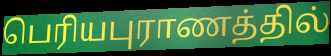
பெரியபுராணத்தில்